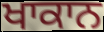
ਖਾਕਾਨ